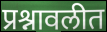
प्रश्नावलीत